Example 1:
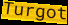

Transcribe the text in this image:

Turgot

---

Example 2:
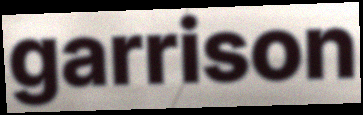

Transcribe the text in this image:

garrison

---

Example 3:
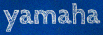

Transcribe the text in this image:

yamaha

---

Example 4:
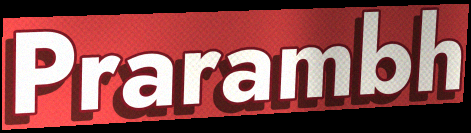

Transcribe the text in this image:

Prarambh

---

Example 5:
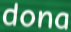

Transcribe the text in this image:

dona